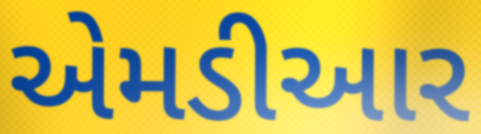
એમડીઆર